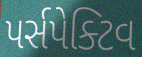
પર્સપેક્ટિવ